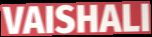
VAISHALI